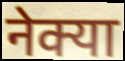
नेक्या